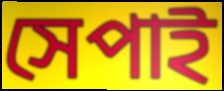
সেপাই